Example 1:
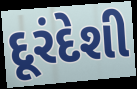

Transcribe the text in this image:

દૂરંદેશી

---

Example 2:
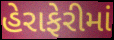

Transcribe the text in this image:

હેરાફેરીમાં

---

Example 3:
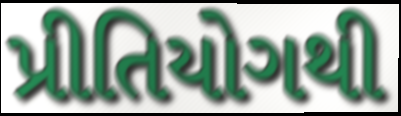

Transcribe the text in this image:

પ્રીતિયોગથી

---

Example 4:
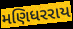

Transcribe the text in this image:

મણિધરરાય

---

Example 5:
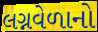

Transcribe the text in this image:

લગ્નવેળાનો